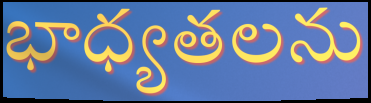
భాధ్యతలను